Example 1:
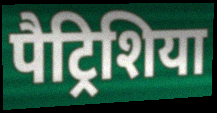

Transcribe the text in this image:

पैट्रिशिया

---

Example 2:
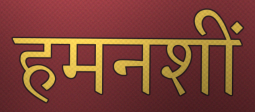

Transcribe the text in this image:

हमनशीं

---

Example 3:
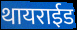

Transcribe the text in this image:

थायराईड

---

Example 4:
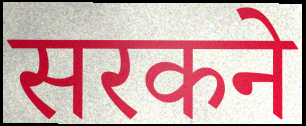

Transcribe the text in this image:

सरकने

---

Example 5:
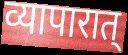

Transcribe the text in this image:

व्यापारात्